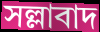
সল্লাবাদ